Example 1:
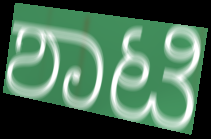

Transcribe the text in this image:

ಶಾಟಿ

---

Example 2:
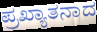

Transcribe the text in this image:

ಪ್ರಖ್ಯಾತನಾದ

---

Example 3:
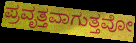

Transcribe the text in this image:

ಪ್ರವೃತ್ತವಾಗುತ್ತವೋ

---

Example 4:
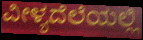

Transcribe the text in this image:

ವೀಳ್ಯದೆಲೆಯಲ್ಲಿ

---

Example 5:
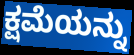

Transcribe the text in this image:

ಕ್ಷಮೆಯನ್ನು